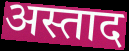
अस्ताद